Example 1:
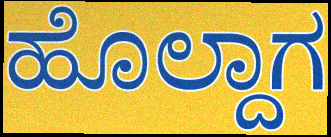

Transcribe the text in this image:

ಹೊಲ್ದಾಗ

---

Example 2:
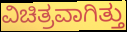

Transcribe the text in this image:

ವಿಚಿತ್ರವಾಗಿತ್ತು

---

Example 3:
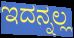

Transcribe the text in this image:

ಇದನ್ನಲ್ಲ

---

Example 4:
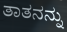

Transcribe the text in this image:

ತಾತನನ್ನು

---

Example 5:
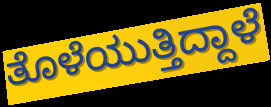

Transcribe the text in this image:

ತೊಳೆಯುತ್ತಿದ್ದಾಳೆ